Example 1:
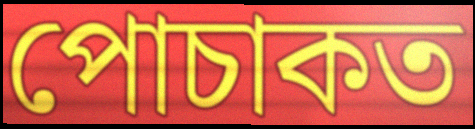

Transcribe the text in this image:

পোচাকত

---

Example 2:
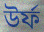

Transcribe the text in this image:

উৰ্ফ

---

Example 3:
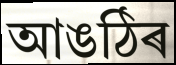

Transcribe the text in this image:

আঙঠিৰ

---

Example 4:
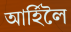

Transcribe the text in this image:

আৰ্হিলৈ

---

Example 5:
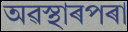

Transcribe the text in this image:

অৱস্থাৰপৰা